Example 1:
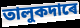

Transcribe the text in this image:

তালুকদাৰে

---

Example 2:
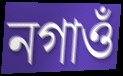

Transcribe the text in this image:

নগাওঁ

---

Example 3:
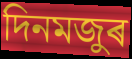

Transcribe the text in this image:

দিনমজুৰ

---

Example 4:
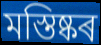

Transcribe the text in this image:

মস্তিষ্কৰ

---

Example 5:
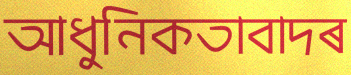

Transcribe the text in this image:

আধুনিকতাবাদৰ